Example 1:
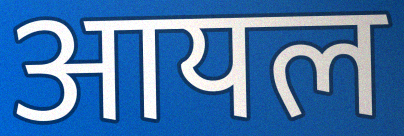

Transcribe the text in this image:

आयल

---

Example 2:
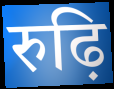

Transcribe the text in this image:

रुढ़ि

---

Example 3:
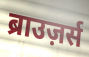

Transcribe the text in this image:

ब्राउज़र्स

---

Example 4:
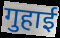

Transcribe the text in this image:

गुहाई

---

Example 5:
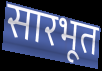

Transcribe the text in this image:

सारभूत